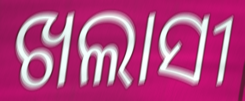
ଖଲାସୀ